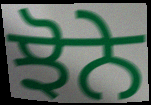
ਝੋਨੇ